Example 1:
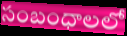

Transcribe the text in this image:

సంబంధాలలో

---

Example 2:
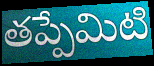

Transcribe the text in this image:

తప్పేమిటి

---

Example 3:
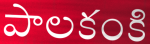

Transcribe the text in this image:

పాలకంకి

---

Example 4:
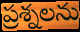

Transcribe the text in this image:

ప్రశ్నలను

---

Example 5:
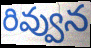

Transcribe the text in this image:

రివ్వున